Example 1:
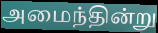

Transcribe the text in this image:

அமைந்தின்று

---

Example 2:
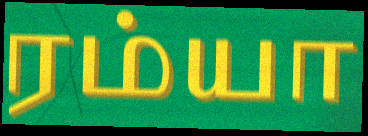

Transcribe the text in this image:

ரம்யா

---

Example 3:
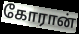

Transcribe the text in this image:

கோரான்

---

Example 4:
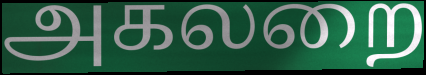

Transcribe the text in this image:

அகலறை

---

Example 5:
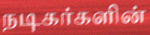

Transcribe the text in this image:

நடிகர்களின்